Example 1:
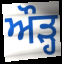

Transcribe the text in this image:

ਔੜ੍ਹ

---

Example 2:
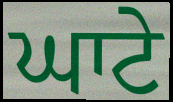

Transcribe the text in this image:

ਘਾਟੇ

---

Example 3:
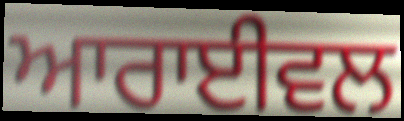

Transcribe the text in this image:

ਆਰਾਈਵਲ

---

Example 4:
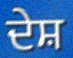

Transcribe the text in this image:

ਦੇਸ਼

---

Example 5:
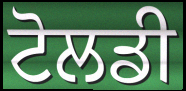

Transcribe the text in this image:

ਟੋਲਡੀ